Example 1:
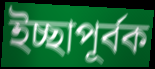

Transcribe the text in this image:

ইচ্ছাপূর্বক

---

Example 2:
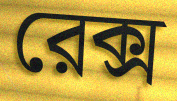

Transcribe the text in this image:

রেক্স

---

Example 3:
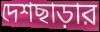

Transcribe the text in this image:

দেশছাড়ার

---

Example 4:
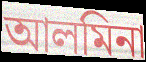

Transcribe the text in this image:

আলমিনা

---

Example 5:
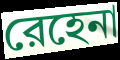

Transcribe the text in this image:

রেহেনা